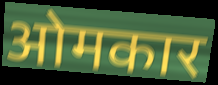
ओमकार